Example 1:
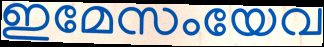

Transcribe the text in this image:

ഇമേസംയേവ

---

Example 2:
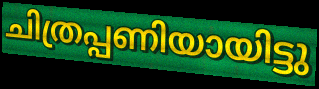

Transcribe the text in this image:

ചിത്രപ്പണിയായിട്ടു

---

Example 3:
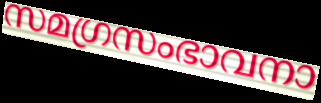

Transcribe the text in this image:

സമഗ്രസംഭാവനാ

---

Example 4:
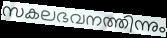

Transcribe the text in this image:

സകലഭവനത്തിന്നും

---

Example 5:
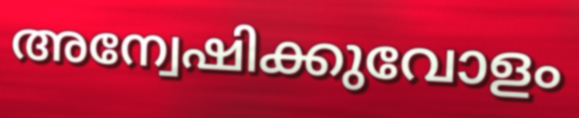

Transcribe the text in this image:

അന്വേഷിക്കുവോളം